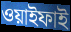
ওয়াইফাই